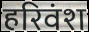
हरिवंश